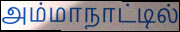
அம்மாநாட்டில்